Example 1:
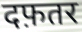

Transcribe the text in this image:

दफ़तर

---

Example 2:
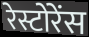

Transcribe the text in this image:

रेस्टोरेंस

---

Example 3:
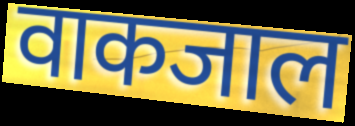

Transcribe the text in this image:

वाकजाल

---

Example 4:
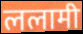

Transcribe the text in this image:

ललामी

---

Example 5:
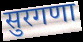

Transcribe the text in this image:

सुरगणा